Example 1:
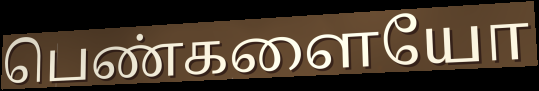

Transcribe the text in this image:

பெண்களையோ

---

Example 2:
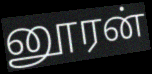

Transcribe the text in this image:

னூரன்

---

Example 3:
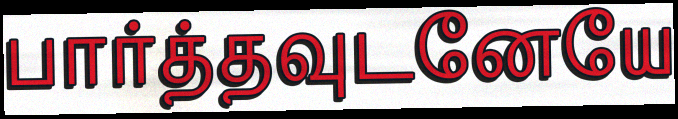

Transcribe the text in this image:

பார்த்தவுடனேயே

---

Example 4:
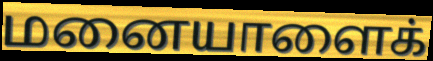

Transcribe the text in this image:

மனையாளைக்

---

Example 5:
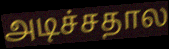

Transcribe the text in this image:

அடிச்சதால